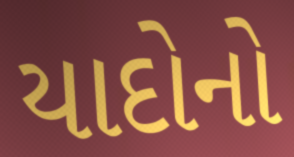
યાદોનો